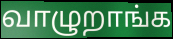
வாழுறாங்க